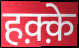
हक़्क़े